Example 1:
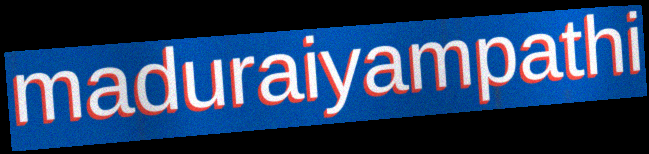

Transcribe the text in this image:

maduraiyampathi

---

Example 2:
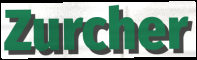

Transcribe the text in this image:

Zurcher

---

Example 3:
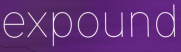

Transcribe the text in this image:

expound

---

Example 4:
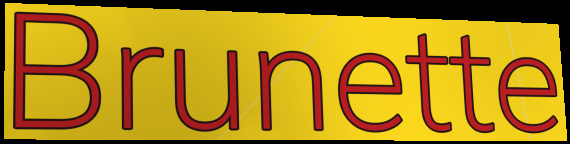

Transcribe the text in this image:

Brunette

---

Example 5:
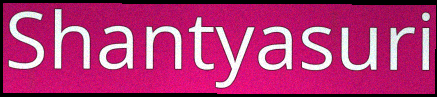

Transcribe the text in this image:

Shantyasuri